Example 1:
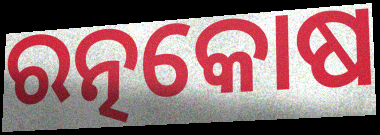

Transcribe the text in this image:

ରତ୍ନକୋଷ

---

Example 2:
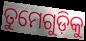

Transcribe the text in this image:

ତୁମେଗୁଡ଼ିକୁ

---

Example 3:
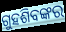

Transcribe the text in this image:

ଗୁହଶିବଙ୍କର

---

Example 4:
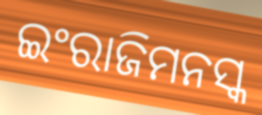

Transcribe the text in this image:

ଇଂରାଜିମନସ୍କ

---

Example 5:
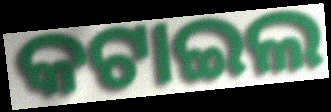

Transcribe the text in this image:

କଟାଇଲ